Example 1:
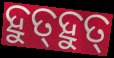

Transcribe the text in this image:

ହୁତ୍‍ହୁତ୍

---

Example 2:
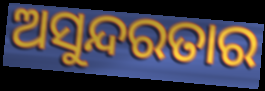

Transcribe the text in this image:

ଅସୁନ୍ଦରତାର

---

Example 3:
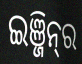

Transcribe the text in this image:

ଇଞ୍ଜିନ୍‌ର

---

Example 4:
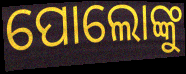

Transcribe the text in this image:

ପୋଲୋଙ୍କୁ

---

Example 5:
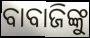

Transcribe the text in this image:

ବାବାଜିଙ୍କୁ